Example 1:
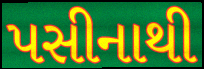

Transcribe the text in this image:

પસીનાથી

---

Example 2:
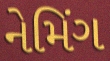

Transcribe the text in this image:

નેમિંગ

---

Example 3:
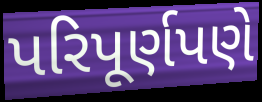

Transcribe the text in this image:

પરિપૂર્ણપણે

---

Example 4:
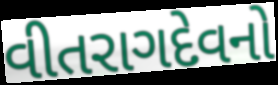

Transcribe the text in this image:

વીતરાગદેવનો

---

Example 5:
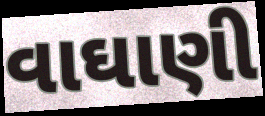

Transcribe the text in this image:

વાઘાણી